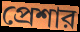
প্রেশার